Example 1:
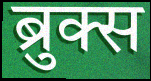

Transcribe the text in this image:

ब्रुक्‍स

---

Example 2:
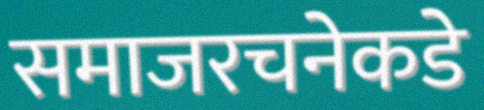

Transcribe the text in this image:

समाजरचनेकडे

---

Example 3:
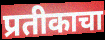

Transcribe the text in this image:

प्रतीकाचा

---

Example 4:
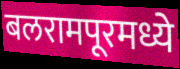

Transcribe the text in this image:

बलरामपूरमध्ये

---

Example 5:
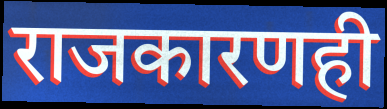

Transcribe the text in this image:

राजकारणही